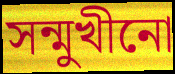
সন্মুখীনো